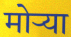
मोर्‍या